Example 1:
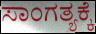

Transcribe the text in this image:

ಸಾಂಗತ್ಯಕ್ಕೆ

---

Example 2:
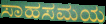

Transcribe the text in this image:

ಸಾಹಸಮಯ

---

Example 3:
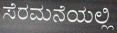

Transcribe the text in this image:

ಸೆರಮನೆಯಲ್ಲಿ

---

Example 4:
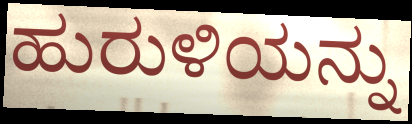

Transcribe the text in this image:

ಹುರುಳಿಯನ್ನು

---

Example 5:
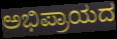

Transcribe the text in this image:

ಅಭಿಪ್ರಾಯದ